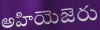
అహియెజెరు